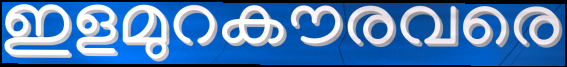
ഇളമുറകൗരവരെ